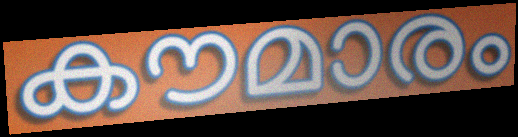
കൗമാരം